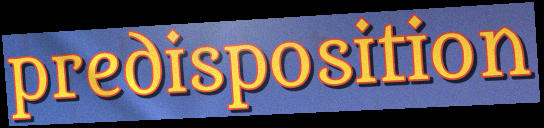
predisposition